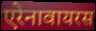
एरेनावायरस